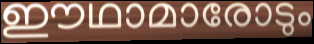
ഈഥാമാരോടും